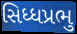
સિધ્ધપ્રભુ